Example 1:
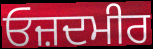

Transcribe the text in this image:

ਓਜ਼ਦਮੀਰ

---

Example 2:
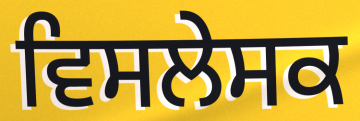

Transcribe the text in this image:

ਵਿਸਲੇਸਕ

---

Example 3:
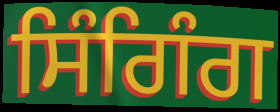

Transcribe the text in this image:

ਸਿੰਗਿੰਗ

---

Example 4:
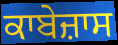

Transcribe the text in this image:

ਕਾਬੇਜ਼ਾਸ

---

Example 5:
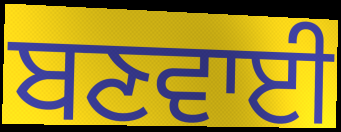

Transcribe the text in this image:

ਬਣਵਾਈ